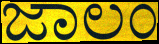
ಜಾಲಂ